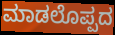
ಮಾಡಲೊಪ್ಪದ